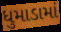
ધુમાડામાં